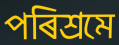
পৰিশ্ৰমে